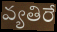
వ్యతిరే